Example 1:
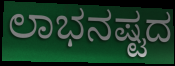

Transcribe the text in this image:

ಲಾಭನಷ್ಟದ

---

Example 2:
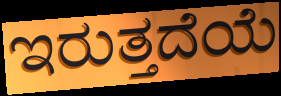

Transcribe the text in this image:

ಇರುತ್ತದೆಯೆ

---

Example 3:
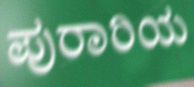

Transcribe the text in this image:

ಪುರಾರಿಯ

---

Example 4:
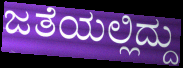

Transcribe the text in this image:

ಜತೆಯಲ್ಲಿದ್ದು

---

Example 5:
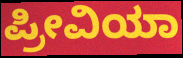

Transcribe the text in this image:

ಪ್ರೀವಿಯಾ